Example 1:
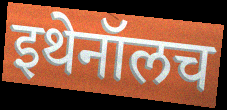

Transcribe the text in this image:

इथेनॉलच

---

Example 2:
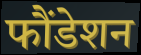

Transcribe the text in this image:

फौंडेशन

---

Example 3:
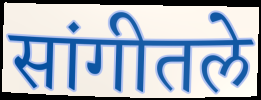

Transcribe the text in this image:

सांगीतले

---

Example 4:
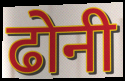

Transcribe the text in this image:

ढोनी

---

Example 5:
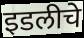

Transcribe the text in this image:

इडलीचे